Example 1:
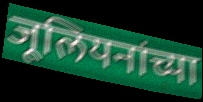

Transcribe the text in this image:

जूलियनांच्या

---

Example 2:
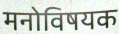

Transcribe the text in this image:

मनोविषयक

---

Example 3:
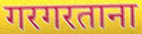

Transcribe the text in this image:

गरगरताना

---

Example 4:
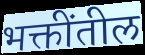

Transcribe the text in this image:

भक्तींतील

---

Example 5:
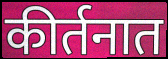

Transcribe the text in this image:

कीर्तनात